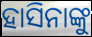
ହାସିନାଙ୍କୁ